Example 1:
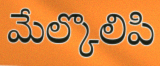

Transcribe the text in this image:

మేల్కొలిపి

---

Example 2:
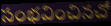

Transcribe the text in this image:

సంభవించినచో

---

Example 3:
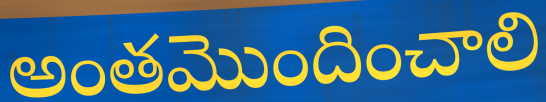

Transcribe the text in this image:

అంతమొందించాలి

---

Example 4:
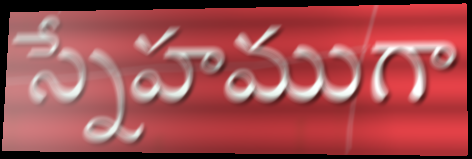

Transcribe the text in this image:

స్నేహముగా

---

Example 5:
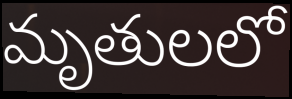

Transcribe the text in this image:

మృతులలో